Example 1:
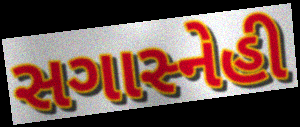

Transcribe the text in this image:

સગાસ્નેહી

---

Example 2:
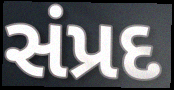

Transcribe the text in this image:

સંપ્રદ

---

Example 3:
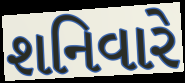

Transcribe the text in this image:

શનિવારે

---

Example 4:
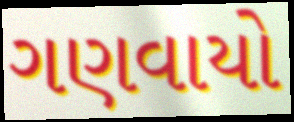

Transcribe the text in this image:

ગણવાયો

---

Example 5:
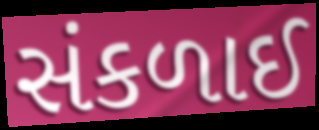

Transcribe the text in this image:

સંકળાઈ